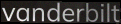
vanderbilt